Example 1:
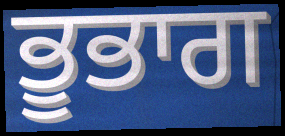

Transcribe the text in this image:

ਭੂਭਾਗ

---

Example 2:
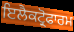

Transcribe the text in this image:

ਇਲੈਕਟ੍ਰੋਫਾਰਮ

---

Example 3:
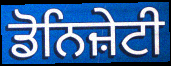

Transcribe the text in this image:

ਡੋਨਿਜ਼ੇਟੀ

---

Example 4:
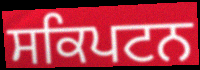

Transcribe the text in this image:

ਸਕਿਪਟਨ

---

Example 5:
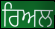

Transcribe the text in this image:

ਰਿਅਲ